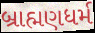
બ્રાહ્મણધર્મ